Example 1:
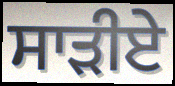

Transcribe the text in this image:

ਸਾੜੀਏ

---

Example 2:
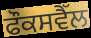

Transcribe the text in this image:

ਫੌਕਸਵੈੱਲ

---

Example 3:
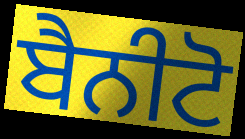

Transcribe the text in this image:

ਬੈਨੀਟੋ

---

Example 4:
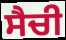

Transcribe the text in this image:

ਸੈਚੀ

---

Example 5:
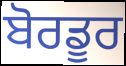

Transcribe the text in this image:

ਬੋਰਡੂਰ